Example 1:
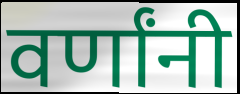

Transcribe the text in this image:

वर्णांनी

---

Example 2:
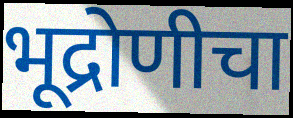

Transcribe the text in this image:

भूद्रोणीचा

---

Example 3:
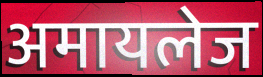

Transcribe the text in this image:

अमायलेज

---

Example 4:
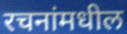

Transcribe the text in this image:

रचनांमधील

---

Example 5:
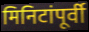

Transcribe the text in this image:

मिनिटांपूर्वी